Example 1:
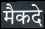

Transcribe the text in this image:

मैकदे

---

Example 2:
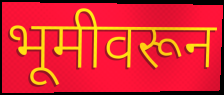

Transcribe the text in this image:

भूमीवरून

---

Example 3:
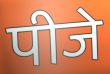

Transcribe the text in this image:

पीजे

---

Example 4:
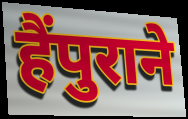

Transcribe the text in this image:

हैंपुराने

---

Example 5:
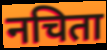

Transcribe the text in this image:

नचिता